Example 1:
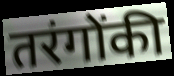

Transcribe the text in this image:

तरंगोंकी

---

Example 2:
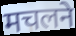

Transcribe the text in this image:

मचलने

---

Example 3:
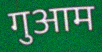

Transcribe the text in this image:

गुआम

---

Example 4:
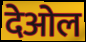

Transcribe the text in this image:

देओल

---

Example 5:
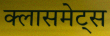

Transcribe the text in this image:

क्लासमेट्स